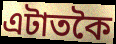
এটাতকৈ